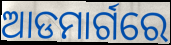
ଆଡମାର୍ଗରେ